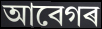
আবেগৰ